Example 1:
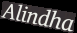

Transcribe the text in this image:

Alindha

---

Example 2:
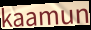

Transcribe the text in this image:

kaamun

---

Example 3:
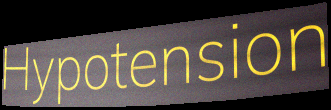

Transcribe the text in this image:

Hypotension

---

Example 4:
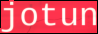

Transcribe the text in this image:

jotun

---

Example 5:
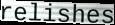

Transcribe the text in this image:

relishes